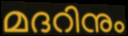
മദറിനും